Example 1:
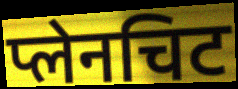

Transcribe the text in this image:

प्लेनचिट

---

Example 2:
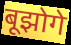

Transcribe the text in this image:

बूझोगे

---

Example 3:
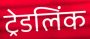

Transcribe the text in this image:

ट्रेडलिंक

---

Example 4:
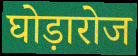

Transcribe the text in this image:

घोड़ारोज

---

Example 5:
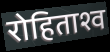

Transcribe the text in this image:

रोहिताश्व